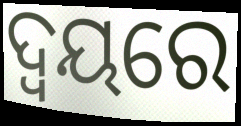
ଦ୍ୱୟରେ